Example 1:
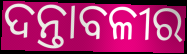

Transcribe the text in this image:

ଦନ୍ତାବଳୀର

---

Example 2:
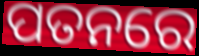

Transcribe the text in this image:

ପତନରେ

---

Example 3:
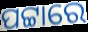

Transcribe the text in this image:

ପଟ୍ଟାରେ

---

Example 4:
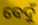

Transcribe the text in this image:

ବେଦୁଁ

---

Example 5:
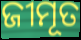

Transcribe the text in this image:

ଜୀମୂତ